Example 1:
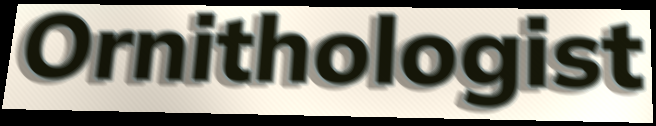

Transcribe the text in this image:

Ornithologist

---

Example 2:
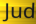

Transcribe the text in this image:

Jud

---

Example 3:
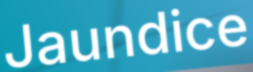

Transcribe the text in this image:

Jaundice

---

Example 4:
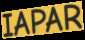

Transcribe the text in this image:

IAPAR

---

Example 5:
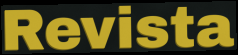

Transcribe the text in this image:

Revista